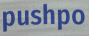
pushpo